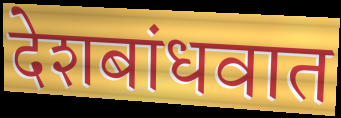
देशबांधवात